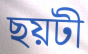
ছয়টী